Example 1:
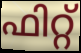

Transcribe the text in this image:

ഫിറ്റ്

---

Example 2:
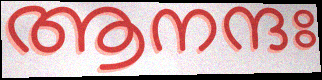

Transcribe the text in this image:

ആനന്ദഃ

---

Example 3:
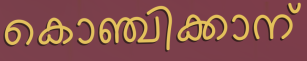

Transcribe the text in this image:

കൊഞ്ചിക്കാന്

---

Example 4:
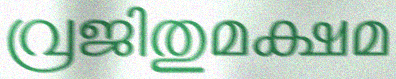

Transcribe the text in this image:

വ്രജിതുമക്ഷമ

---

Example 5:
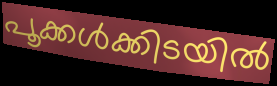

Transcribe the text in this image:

പൂക്കൾക്കിടയിൽ